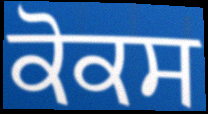
ਕੋਕਸ